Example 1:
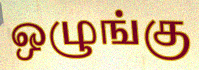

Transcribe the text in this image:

ஒழுங்கு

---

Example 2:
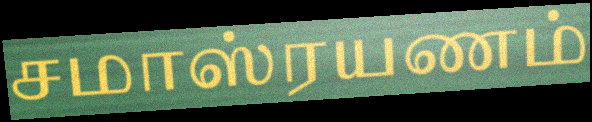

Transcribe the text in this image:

சமாஸ்ரயணம்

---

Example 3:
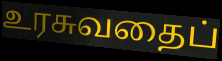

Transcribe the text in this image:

உரசுவதைப்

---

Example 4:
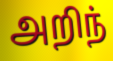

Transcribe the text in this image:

அறிந்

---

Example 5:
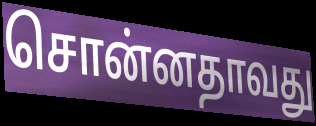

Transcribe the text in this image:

சொன்னதாவது